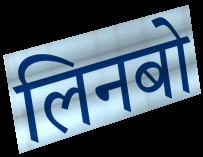
लिनबो